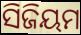
ସିଜିୟମ